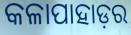
କଳାପାହାଡ଼ର